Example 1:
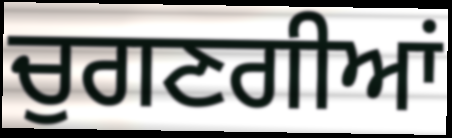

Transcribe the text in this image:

ਚੁਗਣਗੀਆਂ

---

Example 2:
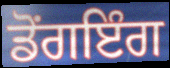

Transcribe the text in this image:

ਡੋਂਗਇੰਗ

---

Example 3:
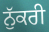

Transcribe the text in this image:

ਨੁੱਕਰੀ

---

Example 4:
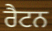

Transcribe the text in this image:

ਰੈਟਨ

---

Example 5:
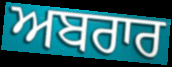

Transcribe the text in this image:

ਅਬਰਾਰ